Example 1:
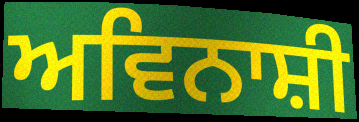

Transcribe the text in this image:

ਅਵਿਨਾਸ਼ੀ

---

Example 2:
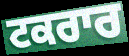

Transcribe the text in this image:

ਟਕਰਾਰ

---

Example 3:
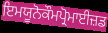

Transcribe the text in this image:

ਇਮਯੂਨੋਕੌਮਪ੍ਰੋਮਾਈਜ਼ਡ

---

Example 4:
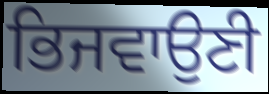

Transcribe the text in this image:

ਭਿਜਵਾਉਣੀ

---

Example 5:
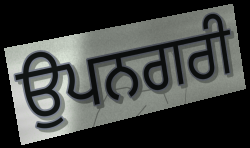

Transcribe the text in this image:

ਉਪਨਗਰੀ